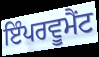
ਇੰਪਰਵੂਮੈਂਟ